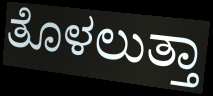
ತೊಳಲುತ್ತಾ